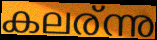
കലര്ന്നു